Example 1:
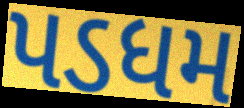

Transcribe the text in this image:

પડધમ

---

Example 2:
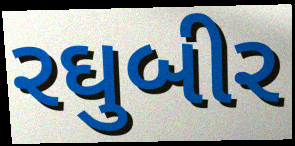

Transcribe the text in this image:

રઘુબીર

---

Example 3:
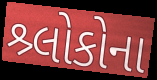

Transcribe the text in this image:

શ્ર્લોકોના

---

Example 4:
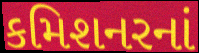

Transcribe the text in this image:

કમિશનરનાં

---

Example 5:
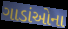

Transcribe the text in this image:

ગાડાંઓના